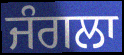
ਜੰਗਲਾ